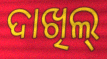
ଦାଖିଲ୍